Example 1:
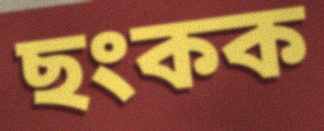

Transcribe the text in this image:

ছংকক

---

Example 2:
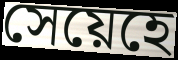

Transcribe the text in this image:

সেয়েহে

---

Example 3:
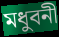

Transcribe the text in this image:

মধুবনী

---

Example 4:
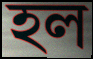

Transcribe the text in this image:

হল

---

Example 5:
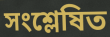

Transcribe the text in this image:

সংশ্লেষিত